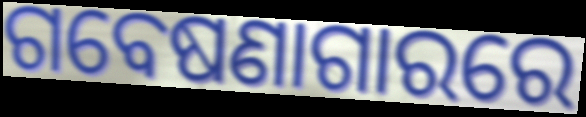
ଗବେଷଣାଗାରରେ